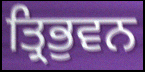
ਤ੍ਰਿਭੁਵਨ